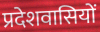
प्रदेशवासियों